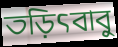
তড়িৎবাবু